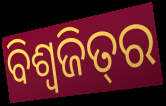
ବିଶ୍ୱଜିତ୍‌ର